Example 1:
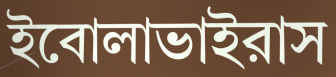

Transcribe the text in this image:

ইবোলাভাইরাস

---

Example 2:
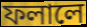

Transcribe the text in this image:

ফলালে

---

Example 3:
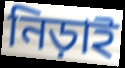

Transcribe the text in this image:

নিড়াই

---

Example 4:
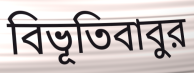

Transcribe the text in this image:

বিভূতিবাবুর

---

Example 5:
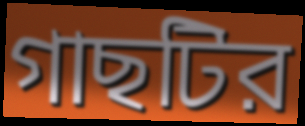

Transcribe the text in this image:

গাছটির